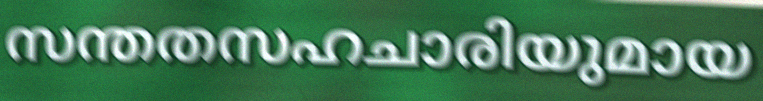
സന്തതസഹചാരിയുമായ